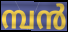
മ്പൻ